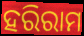
ହରିରାମ